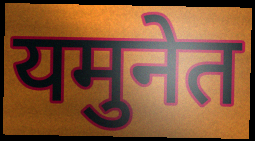
यमुनेत